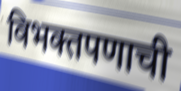
विभक्तपणाची